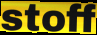
stoff